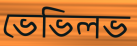
ভেভিলভ